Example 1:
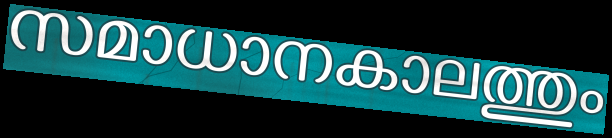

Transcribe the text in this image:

സമാധാനകാലത്തും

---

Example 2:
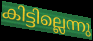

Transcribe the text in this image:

കിട്ടില്ലെന്നു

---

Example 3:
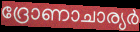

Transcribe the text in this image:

ദ്രോണാചാര്യർ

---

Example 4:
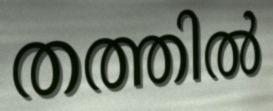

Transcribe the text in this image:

തത്തിൽ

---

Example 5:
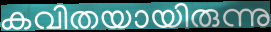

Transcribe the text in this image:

കവിതയായിരുന്നു